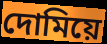
দোমিয়ে